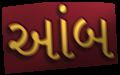
આંબ